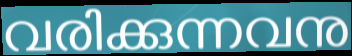
വരിക്കുന്നവനു